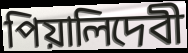
পিয়ালিদেবী